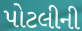
પોટલીની